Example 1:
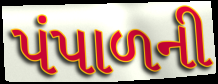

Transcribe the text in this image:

પંપાળની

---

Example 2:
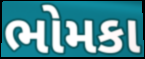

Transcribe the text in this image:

ભોમકા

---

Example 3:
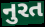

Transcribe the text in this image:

નુરત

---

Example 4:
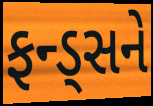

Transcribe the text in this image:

ફન્ડ્સને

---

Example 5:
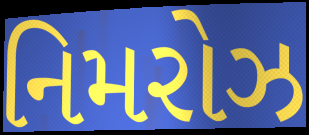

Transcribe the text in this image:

નિમરોઝ